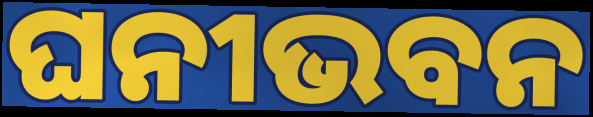
ଘନୀଭବନ